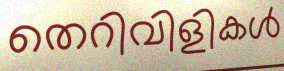
തെറിവിളികൾ